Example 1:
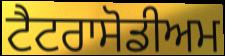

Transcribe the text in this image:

ਟੈਟਰਾਸੋਡੀਅਮ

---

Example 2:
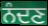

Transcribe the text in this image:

ਨੰਦਣ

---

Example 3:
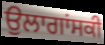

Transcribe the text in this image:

ਉਲਾਗਾਂਸਕੀ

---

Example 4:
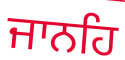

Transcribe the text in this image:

ਜਾਨਹਿ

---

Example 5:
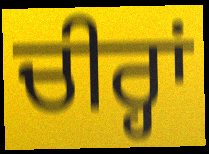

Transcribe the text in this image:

ਚੀਰ੍ਹਾਂ